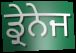
ਡ੍ਰੇਨੇਜ